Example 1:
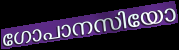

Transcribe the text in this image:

ഗോപാനസിയോ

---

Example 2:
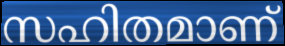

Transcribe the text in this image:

സഹിതമാണ്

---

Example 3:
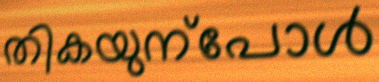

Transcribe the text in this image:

തികയുന്പോൾ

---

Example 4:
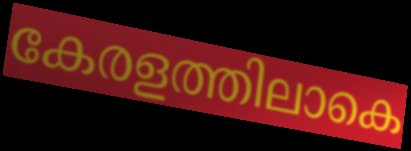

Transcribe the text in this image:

കേരളത്തിലാകെ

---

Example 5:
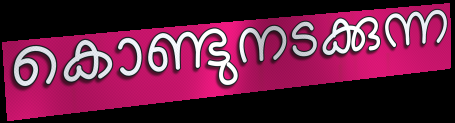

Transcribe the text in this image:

കൊണ്ടുനടക്കുന്ന